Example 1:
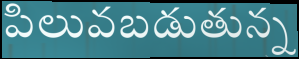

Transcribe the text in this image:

పిలువబడుతున్న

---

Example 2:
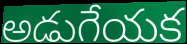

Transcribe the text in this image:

అడుగేయక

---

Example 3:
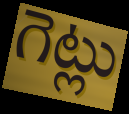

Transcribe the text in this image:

గెట్లు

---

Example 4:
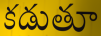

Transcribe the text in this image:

కడుతూ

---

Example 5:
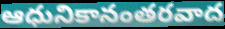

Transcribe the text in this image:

ఆధునికానంతరవాద